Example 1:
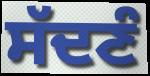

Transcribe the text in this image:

ਸੱਦਣੰ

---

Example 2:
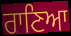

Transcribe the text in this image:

ਰਾਣਿਆ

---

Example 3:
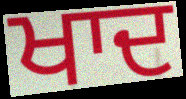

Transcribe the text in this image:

ਖਾਦ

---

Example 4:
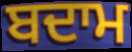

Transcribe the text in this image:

ਬਦਾਮ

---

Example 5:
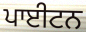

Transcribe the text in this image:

ਪਾਈਟਨ